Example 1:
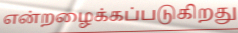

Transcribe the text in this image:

என்றழைக்கப்படுகிறது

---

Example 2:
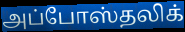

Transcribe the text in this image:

அப்போஸ்தலிக்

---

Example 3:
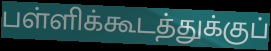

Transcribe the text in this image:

பள்ளிக்கூடத்துக்குப்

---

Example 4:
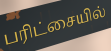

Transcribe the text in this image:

பரிட்சையில்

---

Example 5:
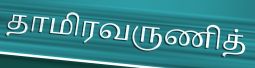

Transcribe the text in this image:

தாமிரவருணித்